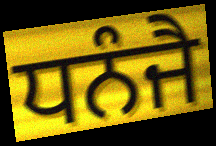
ਧਨੰਜੈ